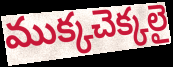
ముక్కచెక్కలై